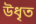
উধৃত